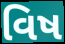
વિષ